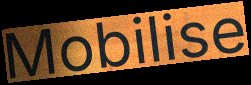
Mobilise